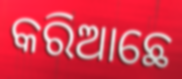
କରିଆଛେ